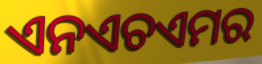
ଏନଏଚଏମର